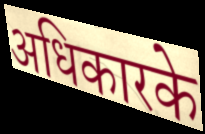
अधिकारके